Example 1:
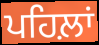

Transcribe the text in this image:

ਪਹਿਲ਼ਾਂ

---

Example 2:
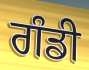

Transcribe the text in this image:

ਗੰਡੀ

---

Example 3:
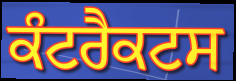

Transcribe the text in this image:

ਕੰਟਰੈਕਟਸ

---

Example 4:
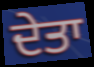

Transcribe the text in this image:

ਦੇਤਾ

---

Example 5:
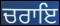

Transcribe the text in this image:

ਚਰਾਇ